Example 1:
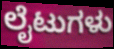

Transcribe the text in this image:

ಲೈಟುಗಳು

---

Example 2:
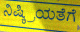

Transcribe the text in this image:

ನಿಷ್ಕ್ರಿಯತೆಗೆ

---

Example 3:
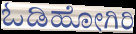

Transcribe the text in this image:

ಓಡಿಹೋಗಿರಿ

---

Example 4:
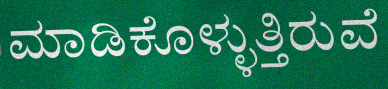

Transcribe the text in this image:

ಮಾಡಿಕೊಳ್ಳುತ್ತಿರುವೆ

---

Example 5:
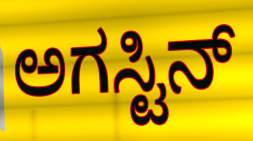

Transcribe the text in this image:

ಅಗಸ್ಟಿನ್